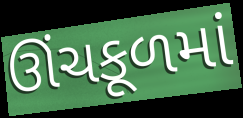
ઊંચકૂળમાં